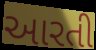
આરતી